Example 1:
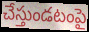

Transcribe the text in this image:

చేస్తుండటంపై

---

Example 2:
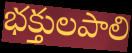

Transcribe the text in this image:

భక్తులపాలి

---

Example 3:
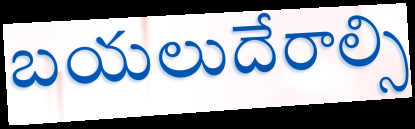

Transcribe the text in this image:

బయలుదేరాల్సి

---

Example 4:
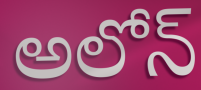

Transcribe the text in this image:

అలోన్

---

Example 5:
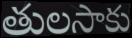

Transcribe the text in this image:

తులసాకు